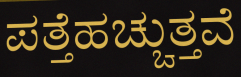
ಪತ್ತೆಹಚ್ಚುತ್ತವೆ